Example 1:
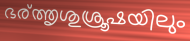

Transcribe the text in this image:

ഭര്ത്തൃശുശ്രൂഷയിലും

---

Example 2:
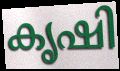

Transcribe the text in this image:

കൃഷി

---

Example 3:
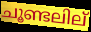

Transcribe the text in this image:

ചൂണ്ടലില്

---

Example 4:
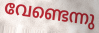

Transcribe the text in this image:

വേണ്ടെന്നു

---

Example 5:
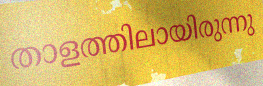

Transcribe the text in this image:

താളത്തിലായിരുന്നു